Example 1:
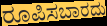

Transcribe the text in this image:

ರೂಪಿಸಬಾರದು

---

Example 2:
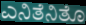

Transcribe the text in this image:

ಎನಿತೆನಿತೊ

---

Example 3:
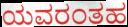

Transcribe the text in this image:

ಯವರಂತಹ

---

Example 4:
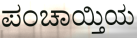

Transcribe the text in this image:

ಪಂಚಾಯ್ತಿಯ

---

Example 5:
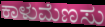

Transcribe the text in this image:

ಕಾಳುಮೆಣಸು